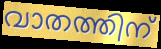
വാതത്തിന്